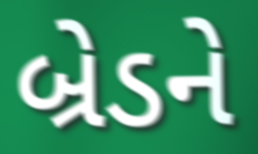
બ્રેડને